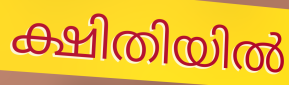
ക്ഷിതിയിൽ